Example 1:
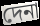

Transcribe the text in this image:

দেনা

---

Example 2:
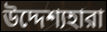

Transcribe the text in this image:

উদ্দেশ্যহারা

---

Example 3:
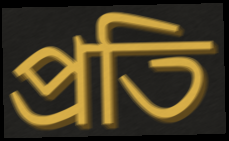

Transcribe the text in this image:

প্রতি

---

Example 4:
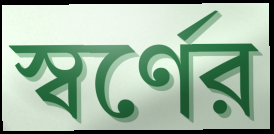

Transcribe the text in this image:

স্বর্ণের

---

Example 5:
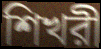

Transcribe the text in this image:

শিখরী